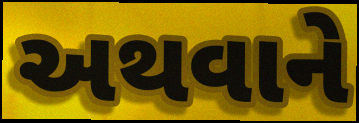
અથવાને